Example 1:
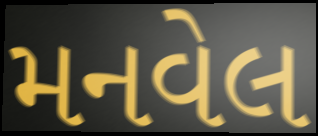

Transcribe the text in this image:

મનવેલ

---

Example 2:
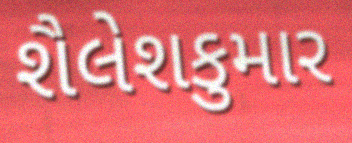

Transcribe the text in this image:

શૈલેશકુમાર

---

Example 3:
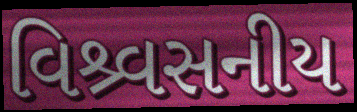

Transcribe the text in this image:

વિશ્ર્વસનીય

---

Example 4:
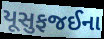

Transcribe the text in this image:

યૂસુફજઈના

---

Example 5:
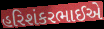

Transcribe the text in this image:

હરિશંકરભાઈએ